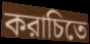
করাচিতে